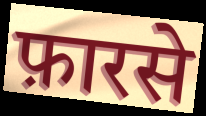
फ़ारसे